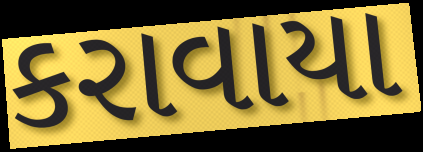
કરાવાયા